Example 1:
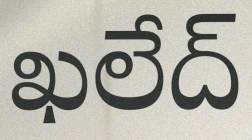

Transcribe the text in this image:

ఖలేద్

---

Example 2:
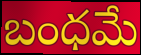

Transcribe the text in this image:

బంధమే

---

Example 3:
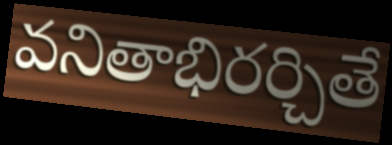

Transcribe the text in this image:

వనితాభిరర్చితే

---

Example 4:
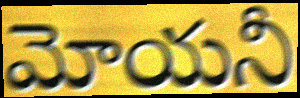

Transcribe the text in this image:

మోయనీ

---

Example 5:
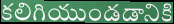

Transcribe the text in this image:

కలిగియుండడానికి